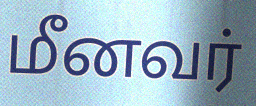
மீனவர்